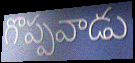
గొప్పవాడు